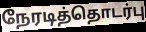
நேரடித்தொடர்பு